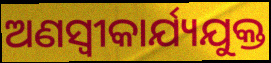
ଅଣସ୍ବୀକାର୍ଯ୍ୟଯୁକ୍ତ